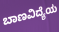
ಬಾಣವಿದ್ಯೆಯ